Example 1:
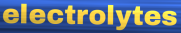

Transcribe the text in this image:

electrolytes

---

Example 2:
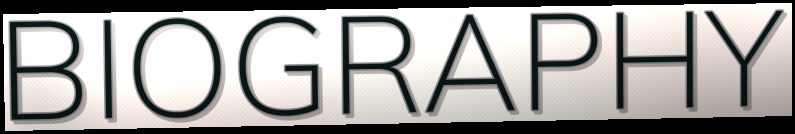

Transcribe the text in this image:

BIOGRAPHY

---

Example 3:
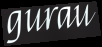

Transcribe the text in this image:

gurau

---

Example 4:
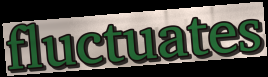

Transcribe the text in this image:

fluctuates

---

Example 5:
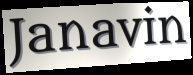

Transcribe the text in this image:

Janavin